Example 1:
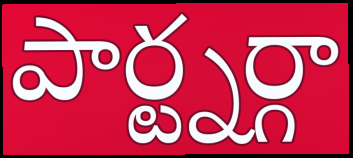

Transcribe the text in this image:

పార్ట్నర్గా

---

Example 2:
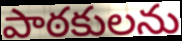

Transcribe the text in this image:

పాఠకులను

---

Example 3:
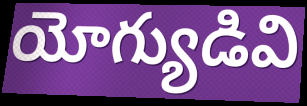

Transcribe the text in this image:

యోగ్యుడివి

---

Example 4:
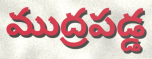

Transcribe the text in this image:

ముద్రపడ్డ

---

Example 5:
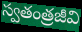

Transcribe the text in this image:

స్వతంత్రజీవి